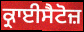
ਕ੍ਰਾਈਸੈਟੋਜ਼